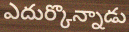
ఎదుర్కొన్నాడు